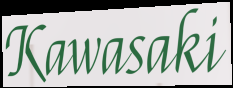
Kawasaki